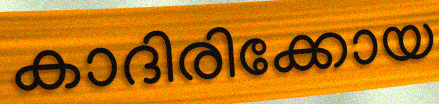
കാദിരിക്കോയ